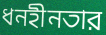
ধনহীনতার